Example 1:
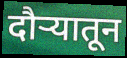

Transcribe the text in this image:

दौर्‍यातून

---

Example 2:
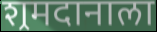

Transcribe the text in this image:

श्रमदानाला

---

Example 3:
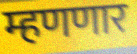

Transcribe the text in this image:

म्हणणार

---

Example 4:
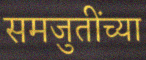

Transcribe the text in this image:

समजुतींच्या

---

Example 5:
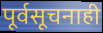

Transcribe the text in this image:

पूर्वसूचनाही